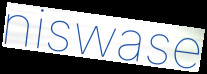
niswase